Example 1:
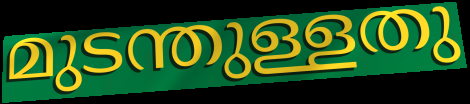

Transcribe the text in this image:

മുടന്തുള്ളതു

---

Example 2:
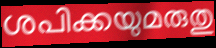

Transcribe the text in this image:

ശപിക്കയുമരുതു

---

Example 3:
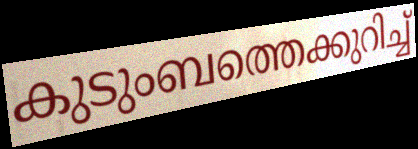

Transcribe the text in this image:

കുടുംബത്തെക്കുറിച്ച്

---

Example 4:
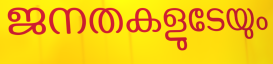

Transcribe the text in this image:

ജനതകളുടേയും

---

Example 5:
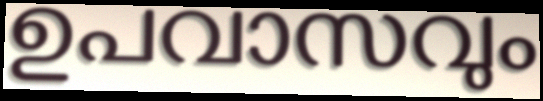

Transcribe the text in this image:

ഉപവാസവും